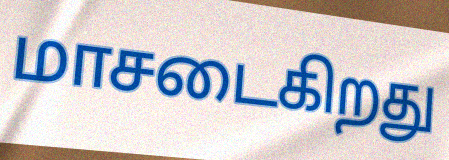
மாசடைகிறது